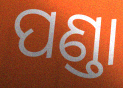
ପଣ୍ଡା